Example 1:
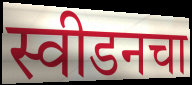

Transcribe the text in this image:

स्वीडनचा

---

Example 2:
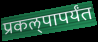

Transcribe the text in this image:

प्रकल्पापर्यंत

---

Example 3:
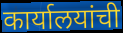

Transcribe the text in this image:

कार्यालयांची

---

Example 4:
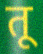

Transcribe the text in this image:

तू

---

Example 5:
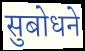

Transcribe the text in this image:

सुबोधने